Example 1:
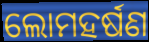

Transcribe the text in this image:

ଲୋମହର୍ଷଣ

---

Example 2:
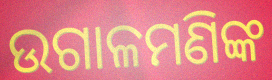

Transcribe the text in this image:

ଉଗାଳମଣିଙ୍କ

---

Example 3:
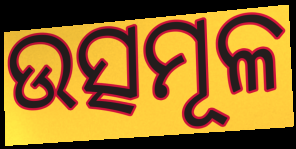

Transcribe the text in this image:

ଉତ୍ସମୂଳ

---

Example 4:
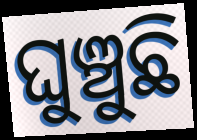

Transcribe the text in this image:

ଘୁଞ୍ଚୁଛି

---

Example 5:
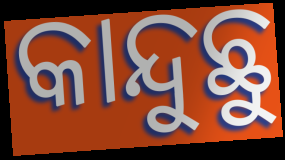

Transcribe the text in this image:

କାନ୍ଦୁଛୁ